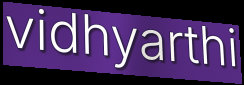
vidhyarthi